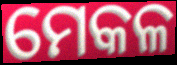
ମେକଳ